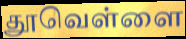
தூவெள்ளை